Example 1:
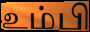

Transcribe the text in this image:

உம்பி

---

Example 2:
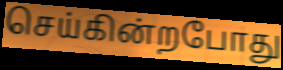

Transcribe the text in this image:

செய்கின்றபோது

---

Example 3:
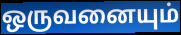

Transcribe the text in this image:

ஒருவனையும்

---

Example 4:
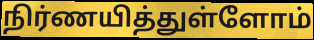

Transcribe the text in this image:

நிர்ணயித்துள்ளோம்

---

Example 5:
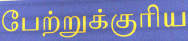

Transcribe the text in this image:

பேற்றுக்குரிய